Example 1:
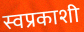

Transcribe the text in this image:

स्वप्रकाशी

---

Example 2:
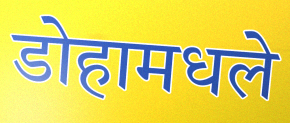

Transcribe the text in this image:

डोहामधले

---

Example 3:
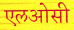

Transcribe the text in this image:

एलओसी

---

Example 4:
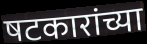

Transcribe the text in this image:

षटकारांच्या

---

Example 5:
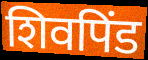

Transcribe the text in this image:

शिवपिंड